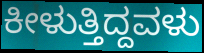
ಕೀಳುತ್ತಿದ್ದವಳು